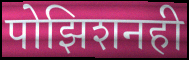
पोझिशनही